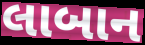
લાબાન